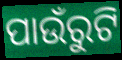
ପାଉଁରୁଟି